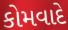
કોમવાદે